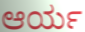
ಆರ್ಯ